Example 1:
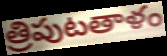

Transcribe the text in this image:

త్రిపుటతాళం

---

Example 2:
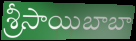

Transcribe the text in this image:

శ్రీసాయిబాబా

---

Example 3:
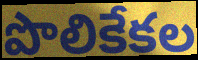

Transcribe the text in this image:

పొలికేకల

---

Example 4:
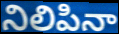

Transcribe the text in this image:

నిలిపినా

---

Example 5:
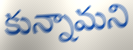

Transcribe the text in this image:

కున్నామని